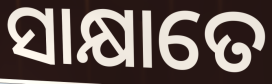
ସାକ୍ଷାତେ